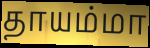
தாயம்மா